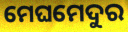
ମେଘମେଦୁର